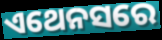
ଏଥେନସରେ